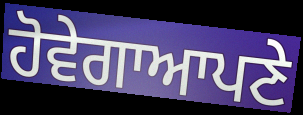
ਹੋਵੇਗਾਆਪਣੇ